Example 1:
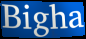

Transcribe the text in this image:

Bigha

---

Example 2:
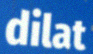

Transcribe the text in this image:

dilat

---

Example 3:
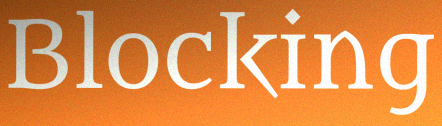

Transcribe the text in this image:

Blocking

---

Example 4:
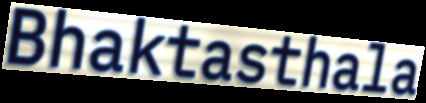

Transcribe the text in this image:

Bhaktasthala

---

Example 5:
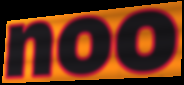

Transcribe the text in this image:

noo